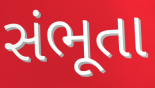
સંભૂતા